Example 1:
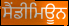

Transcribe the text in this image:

ਸੈਂਡੀਮਿਊਨ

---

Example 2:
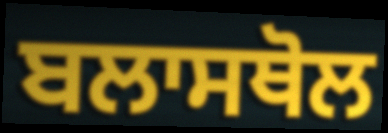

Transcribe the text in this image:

ਬਲਾਸਥੋਲ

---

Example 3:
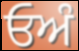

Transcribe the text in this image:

ਓਅੰ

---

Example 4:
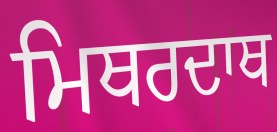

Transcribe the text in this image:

ਮਿਥਰਦਾਥ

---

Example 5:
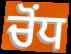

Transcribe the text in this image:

ਚੋਂਧ